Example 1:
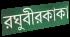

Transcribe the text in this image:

রঘুবীরকাকা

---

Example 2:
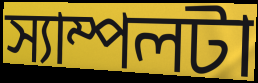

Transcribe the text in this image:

স্যাম্পলটা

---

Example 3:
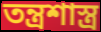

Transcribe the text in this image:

তন্ত্রশাস্ত্র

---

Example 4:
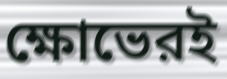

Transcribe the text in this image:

ক্ষোভেরই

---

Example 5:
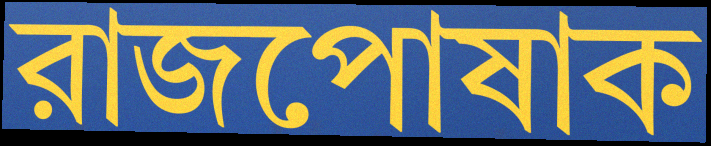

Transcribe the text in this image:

রাজপোষাক